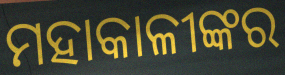
ମହାକାଳୀଙ୍କର